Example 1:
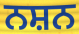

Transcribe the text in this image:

ਨਸ਼ਨ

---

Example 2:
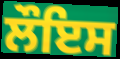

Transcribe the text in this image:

ਲੌਇਸ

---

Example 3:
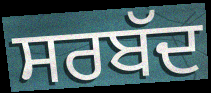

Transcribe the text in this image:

ਸਰਬੱਦ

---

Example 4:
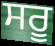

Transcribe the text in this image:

ਸਰੂ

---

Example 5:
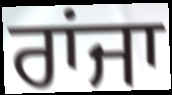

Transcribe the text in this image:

ਰਾਂਜਾ